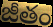
జీతం